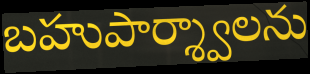
బహుపార్శ్వాలను